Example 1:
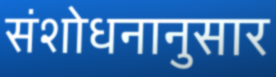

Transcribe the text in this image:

संशोधनानुसार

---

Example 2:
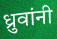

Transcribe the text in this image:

ध्रुवांनी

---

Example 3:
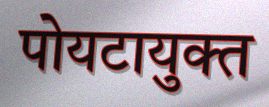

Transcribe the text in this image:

पोयटायुक्त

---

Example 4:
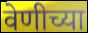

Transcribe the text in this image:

वेणीच्या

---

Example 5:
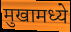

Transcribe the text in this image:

मुखामध्ये